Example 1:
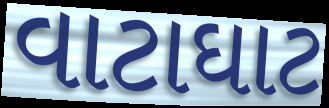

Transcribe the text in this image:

વાટાઘાટ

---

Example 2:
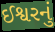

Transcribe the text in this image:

ઈશ્વરનું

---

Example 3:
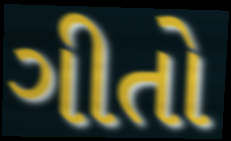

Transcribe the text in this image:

ગીતો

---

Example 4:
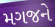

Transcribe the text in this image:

મગજને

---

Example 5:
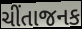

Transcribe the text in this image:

ચીંતાજનક